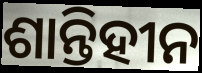
ଶାନ୍ତିହୀନ